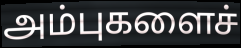
அம்புகளைச்